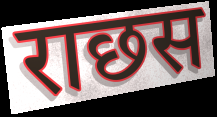
राछस